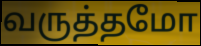
வருத்தமோ